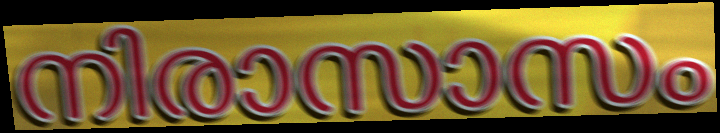
നിരാസാസം